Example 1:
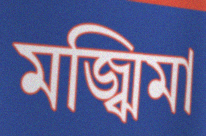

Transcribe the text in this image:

মজ্ঝিমা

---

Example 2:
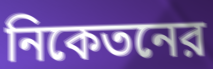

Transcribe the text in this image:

নিকেতনের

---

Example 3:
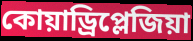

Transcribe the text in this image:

কোয়াড্রিপ্লেজিয়া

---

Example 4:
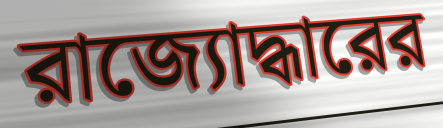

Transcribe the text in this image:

রাজ্যোদ্ধারের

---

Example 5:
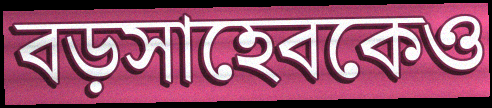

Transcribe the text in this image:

বড়সাহেবকেও